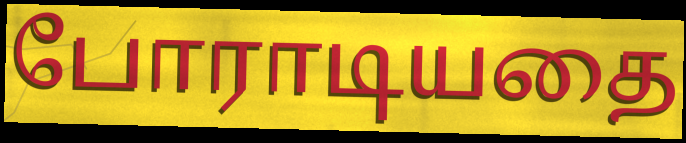
போராடியதை